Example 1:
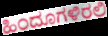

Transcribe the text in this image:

ಹಿಂದೂಗಳಿರಲಿ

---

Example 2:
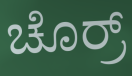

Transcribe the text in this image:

ಚೊರ್ರ್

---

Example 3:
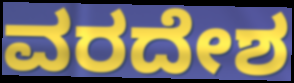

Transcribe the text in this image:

ವರದೇಶ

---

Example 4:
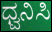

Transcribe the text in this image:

ಧ್ವನಿಸಿ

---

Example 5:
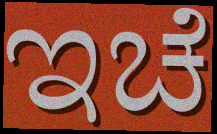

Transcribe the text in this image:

ಇಚೆ